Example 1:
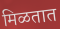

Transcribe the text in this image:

मिळतात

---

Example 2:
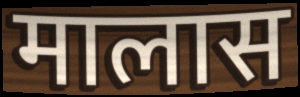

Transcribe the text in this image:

मालास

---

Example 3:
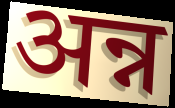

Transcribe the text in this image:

अन्न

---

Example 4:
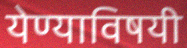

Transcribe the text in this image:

येण्याविषयी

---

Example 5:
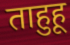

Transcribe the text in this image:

ताहुहू